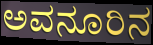
ಅವನೂರಿನ